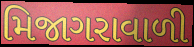
મિજાગરાવાળી